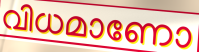
വിധമാണോ